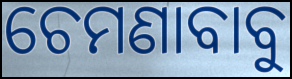
ଚେମଣାବାବୁ